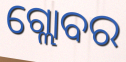
ଗ୍ଲୋବର